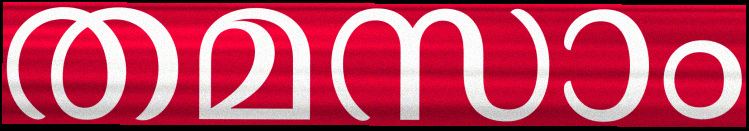
തമസാം